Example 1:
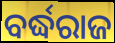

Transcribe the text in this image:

ବର୍ଦ୍ଧରାଜ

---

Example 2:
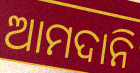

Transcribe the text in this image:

ଆମଦାନି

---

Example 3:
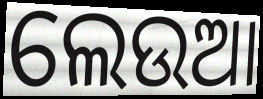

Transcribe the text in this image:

ଲେଉଆ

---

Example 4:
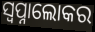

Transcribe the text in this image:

ସ୍ୱପ୍ନାଲୋକର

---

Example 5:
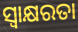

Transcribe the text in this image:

ସ୍ବାକ୍ଷରତା